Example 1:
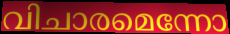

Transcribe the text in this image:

വിചാരമെന്നോ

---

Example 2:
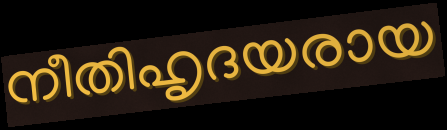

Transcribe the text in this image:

നീതിഹൃദയരായ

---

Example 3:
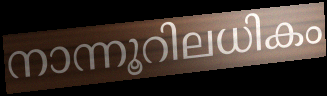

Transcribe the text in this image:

നാന്നൂറിലധികം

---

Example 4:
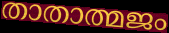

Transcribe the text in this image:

താതാത്മജം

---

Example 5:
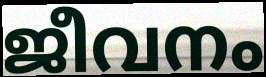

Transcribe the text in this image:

ജീവനം